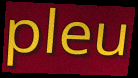
pleu